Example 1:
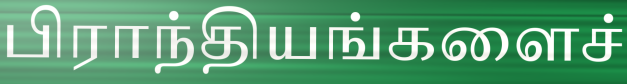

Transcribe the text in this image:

பிராந்தியங்களைச்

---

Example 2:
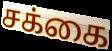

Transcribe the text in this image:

சக்கை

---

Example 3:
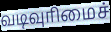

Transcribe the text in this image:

வடிவுரிமைச்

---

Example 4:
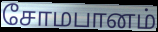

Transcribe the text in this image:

சோமபானம்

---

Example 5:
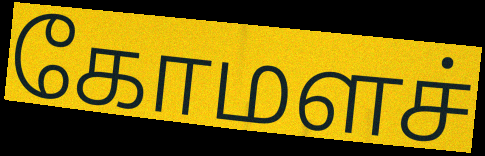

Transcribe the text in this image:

கோமளச்